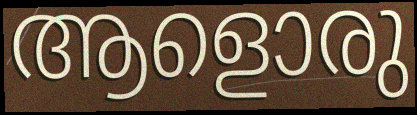
ആളൊരു